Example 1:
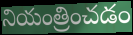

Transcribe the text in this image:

నియంత్రించడం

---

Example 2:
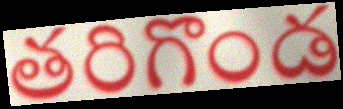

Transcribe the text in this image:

తరిగొండ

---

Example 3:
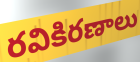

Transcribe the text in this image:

రవికిరణాలు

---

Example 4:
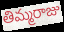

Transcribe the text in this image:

తిమ్మరాజు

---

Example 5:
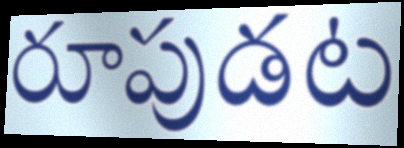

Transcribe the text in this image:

రూపుడట